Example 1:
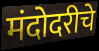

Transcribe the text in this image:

मंदोदरीचे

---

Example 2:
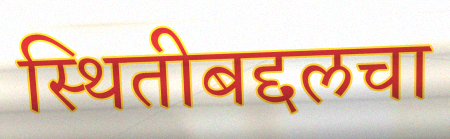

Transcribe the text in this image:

स्थितीबद्दलचा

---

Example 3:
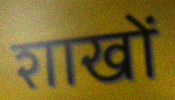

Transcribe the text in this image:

शाखों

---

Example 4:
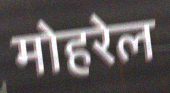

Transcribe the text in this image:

मोहरेल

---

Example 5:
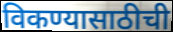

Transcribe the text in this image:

विकण्यासाठीची